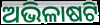
ଅଭିଳାଷଟି